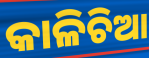
କାଳିଚିଆ